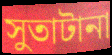
সুতাটানা